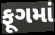
ફૂગમાં